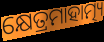
କ୍ଷେତ୍ରମାହାତ୍ମ୍ୟ